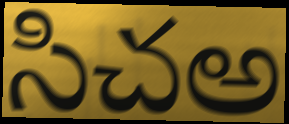
సిచఅ